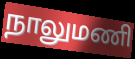
நாலுமணி